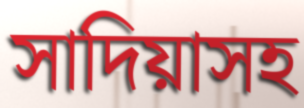
সাদিয়াসহ